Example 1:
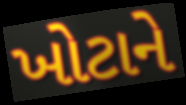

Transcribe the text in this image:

ખોટાને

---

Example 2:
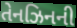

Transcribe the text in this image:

તેનઝિનની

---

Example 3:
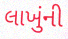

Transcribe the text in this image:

લાખુંની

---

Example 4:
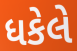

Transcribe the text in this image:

ધકેલે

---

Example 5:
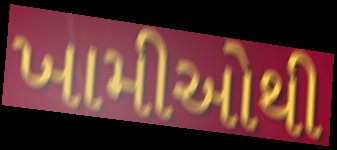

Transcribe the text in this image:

ખામીઓથી